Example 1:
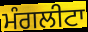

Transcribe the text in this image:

ਮੰਗਲੀਟਾ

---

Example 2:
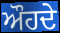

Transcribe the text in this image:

ਔਹਦੇ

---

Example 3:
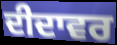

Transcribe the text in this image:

ਦੀਦਾਵਰ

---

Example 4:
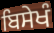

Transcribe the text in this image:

ਬਿਸੇਖੰ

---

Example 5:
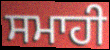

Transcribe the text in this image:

ਸਮਾਹੀ